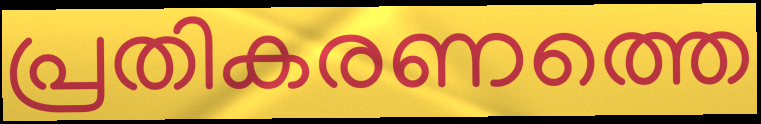
പ്രതികരണത്തെ